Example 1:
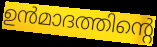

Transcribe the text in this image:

ഉൻമാദത്തിന്റെ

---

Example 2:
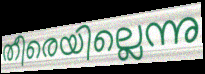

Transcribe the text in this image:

തീരെയില്ലെന്നു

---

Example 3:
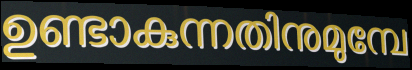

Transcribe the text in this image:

ഉണ്ടാകുന്നതിനുമുമ്പേ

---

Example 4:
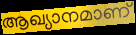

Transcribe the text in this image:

ആഖ്യാനമാണ്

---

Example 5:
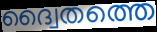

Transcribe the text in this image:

ദ്വൈതത്തെ